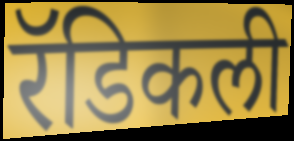
रॅडिकली